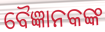
ବୈଜ୍ଞାନକଙ୍କ